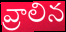
వ్రాలిన